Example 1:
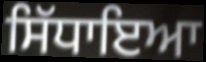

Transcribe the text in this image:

ਸਿੱਧਾਇਆ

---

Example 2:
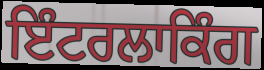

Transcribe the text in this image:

ਇੰਟਰਲਾਕਿੰਗ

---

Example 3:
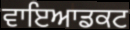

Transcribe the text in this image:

ਵਾਇਆਡਕਟ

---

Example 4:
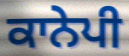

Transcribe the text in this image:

ਕਾਨੇਪੀ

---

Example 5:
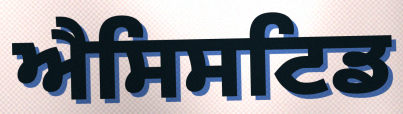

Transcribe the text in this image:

ਐਸਿਸਟਿਡ